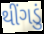
થીંગડું